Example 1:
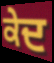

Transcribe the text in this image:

ਕੇਦ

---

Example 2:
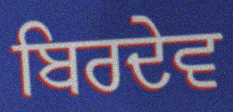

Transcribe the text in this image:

ਬਿਰਦੇਵ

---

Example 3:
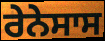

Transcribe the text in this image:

ਰੇਨੇਸਾਸ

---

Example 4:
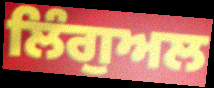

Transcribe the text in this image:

ਲਿੰਗੁਅਲ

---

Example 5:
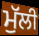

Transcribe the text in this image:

ਮੁੱਲੀ